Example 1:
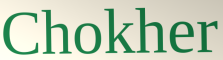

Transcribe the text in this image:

Chokher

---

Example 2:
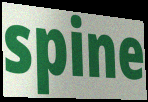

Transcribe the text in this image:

spine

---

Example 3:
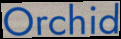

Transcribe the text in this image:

Orchid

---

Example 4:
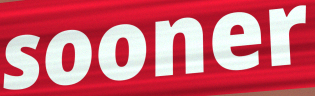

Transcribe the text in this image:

sooner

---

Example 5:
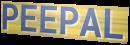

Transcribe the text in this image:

PEEPAL